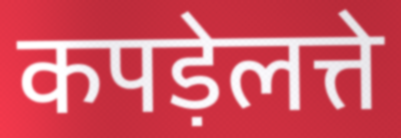
कपड़ेलत्ते